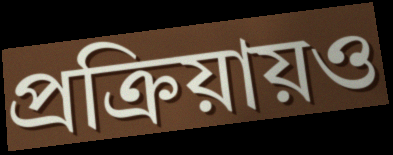
প্রক্রিয়ায়ও